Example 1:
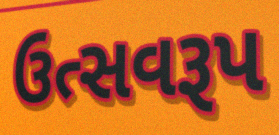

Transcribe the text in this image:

ઉત્સવરૂપ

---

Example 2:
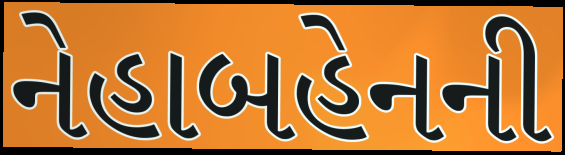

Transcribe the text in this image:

નેહાબહેનની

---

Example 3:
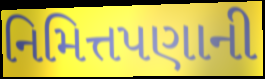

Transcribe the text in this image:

નિમિત્તપણાની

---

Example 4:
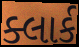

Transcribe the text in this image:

ક્લાર્ક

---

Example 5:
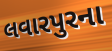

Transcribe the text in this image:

લવારપુરના